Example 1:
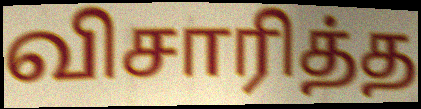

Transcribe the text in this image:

விசாரித்த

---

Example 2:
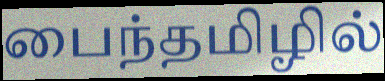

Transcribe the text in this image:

பைந்தமிழில்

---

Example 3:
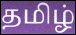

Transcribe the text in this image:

தமிழ்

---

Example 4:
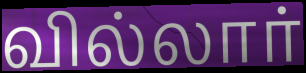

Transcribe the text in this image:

வில்லார்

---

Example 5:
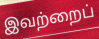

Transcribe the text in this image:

இவற்றைப்